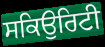
ਸਕਿਉਰਿਟੀ